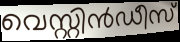
വെസ്റ്റിൻഡീസ്